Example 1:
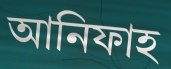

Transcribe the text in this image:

আনিফাহ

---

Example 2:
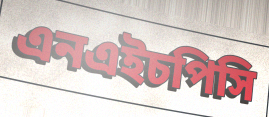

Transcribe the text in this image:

এনএইচপিসি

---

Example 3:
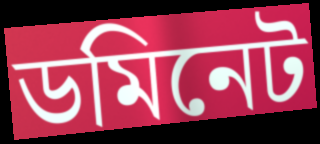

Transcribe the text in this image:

ডমিনেট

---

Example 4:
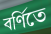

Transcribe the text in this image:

বর্ণিতে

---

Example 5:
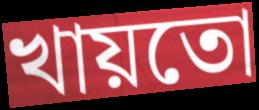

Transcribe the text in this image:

খায়তো